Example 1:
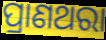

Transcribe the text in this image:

ପ୍ରାଣଥରା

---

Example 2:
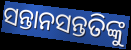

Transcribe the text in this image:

ସନ୍ତାନସନ୍ତତିଙ୍କୁ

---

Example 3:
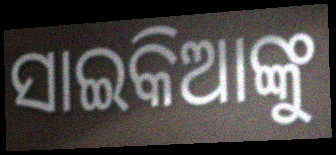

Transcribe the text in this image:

ସାଇକିଆଙ୍କୁ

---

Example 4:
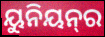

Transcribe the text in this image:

ୟୁନିୟନ୍‌ର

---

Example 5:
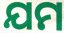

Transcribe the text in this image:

ଯମ